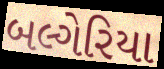
બલ્ગેરિયા